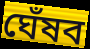
ঘেঁষব